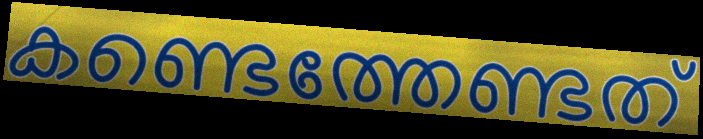
കണ്ടെത്തേണ്ടത്